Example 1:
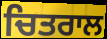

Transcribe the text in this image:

ਚਿਤਰਾਲ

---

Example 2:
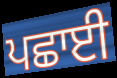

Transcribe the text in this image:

ਪਛਾਈ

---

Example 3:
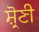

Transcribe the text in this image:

ਸ਼੍ਰੋਣੀ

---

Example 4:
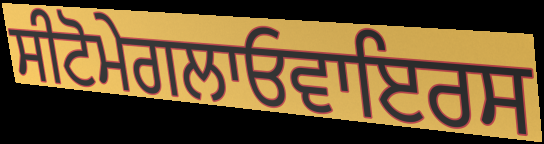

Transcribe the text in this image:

ਸੀਟੋਮੇਗਲਾਓਵਾਇਰਸ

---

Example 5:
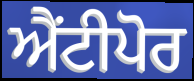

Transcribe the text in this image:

ਐਂਟੀਪੋਰ